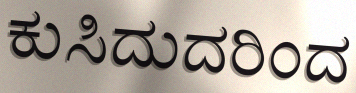
ಕುಸಿದುದರಿಂದ